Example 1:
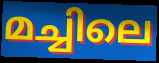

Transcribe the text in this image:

മച്ചിലെ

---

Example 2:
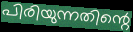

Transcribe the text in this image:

പിരിയുന്നതിന്റെ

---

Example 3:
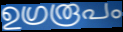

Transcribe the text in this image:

ഉഗ്രരൂപം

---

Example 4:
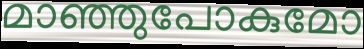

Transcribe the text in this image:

മാഞ്ഞുപോകുമോ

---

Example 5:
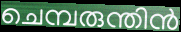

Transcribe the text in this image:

ചെമ്പരുന്തിൻ